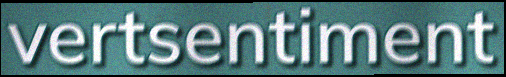
vertsentiment